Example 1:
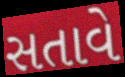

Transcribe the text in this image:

સતાવે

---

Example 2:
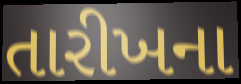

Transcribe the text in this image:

તારીખના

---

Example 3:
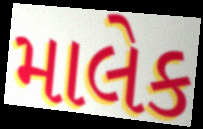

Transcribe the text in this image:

માલેક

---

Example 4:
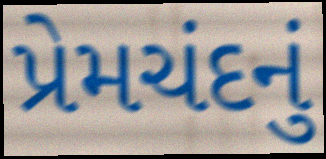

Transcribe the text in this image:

પ્રેમચંદનું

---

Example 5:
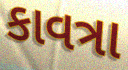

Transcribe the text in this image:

કાવત્રા